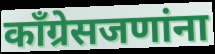
काँग्रेसजणांना